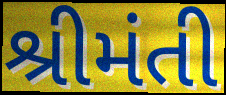
શ્રીમંતી